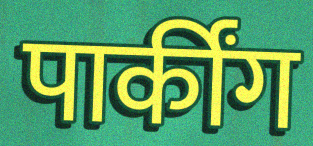
पार्कींग